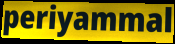
periyammal